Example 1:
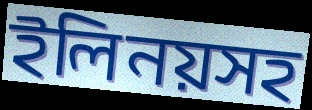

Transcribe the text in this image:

ইলিনয়সহ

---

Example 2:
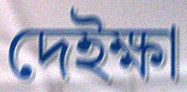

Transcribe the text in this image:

দেইক্ষা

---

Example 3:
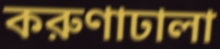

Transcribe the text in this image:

করুণাঢালা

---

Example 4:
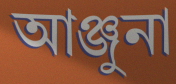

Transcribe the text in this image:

আঞ্জুনা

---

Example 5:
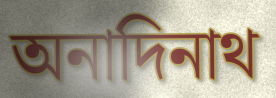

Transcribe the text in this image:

অনাদিনাথ